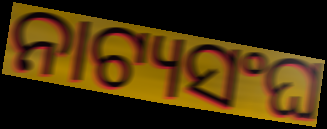
ନାଟ୍ୟସଂଘ